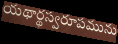
యథార్థస్వరూపమును